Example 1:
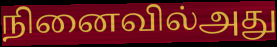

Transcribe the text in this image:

நினைவில்அது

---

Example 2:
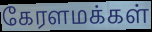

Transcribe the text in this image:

கேரளமக்கள்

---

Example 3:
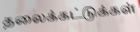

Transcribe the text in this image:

தலைக்கட்டுக்கள்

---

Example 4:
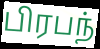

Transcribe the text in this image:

பிரபந்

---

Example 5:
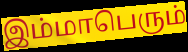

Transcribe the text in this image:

இம்மாபெரும்